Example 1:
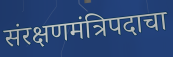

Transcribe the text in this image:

संरक्षणमंत्रिपदाचा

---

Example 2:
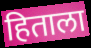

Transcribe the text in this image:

हिताला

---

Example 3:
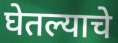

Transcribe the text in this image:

घेतल्याचे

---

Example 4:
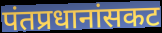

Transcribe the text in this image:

पंतप्रधानांसकट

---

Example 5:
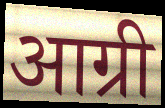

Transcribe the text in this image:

आग्री